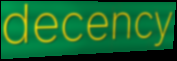
decency